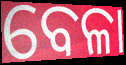
ବେଳା